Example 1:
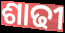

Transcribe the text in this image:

ଶାଢୀ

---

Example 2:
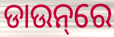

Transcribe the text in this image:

ଡାଉନ୍‌ରେ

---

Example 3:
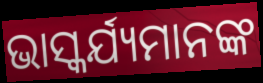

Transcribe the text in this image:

ଭାସ୍କର୍ଯ୍ୟମାନଙ୍କ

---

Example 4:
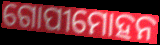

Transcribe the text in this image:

ଗୋପୀମୋହନ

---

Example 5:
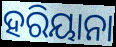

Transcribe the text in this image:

ହରିୟାନା